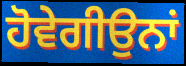
ਹੋਵੇਗੀਉਨਾਂ